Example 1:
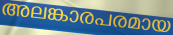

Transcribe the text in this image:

അലങ്കാരപരമായ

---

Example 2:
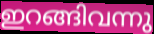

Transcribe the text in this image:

ഇറങ്ങിവന്നു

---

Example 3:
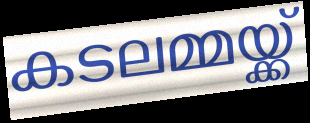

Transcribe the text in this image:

കടലമ്മയ്ക്ക്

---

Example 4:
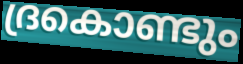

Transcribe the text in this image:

ദ്രകൊണ്ടും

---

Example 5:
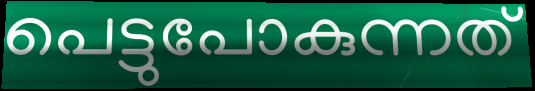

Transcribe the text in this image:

പെട്ടുപോകുന്നത്